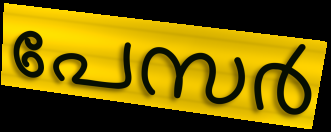
പേസർ